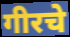
गीरचे